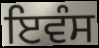
ਇਵੰਸ